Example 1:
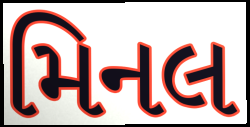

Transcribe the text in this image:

મિનલ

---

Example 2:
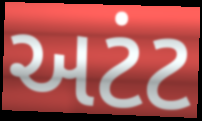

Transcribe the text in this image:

અટંટ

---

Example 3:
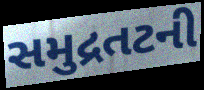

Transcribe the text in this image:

સમુદ્રતટની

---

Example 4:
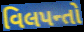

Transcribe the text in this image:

વિલપન્તો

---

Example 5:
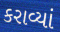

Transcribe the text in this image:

કરાવ્યાં